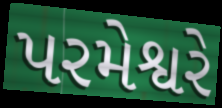
પરમેશ્વરે